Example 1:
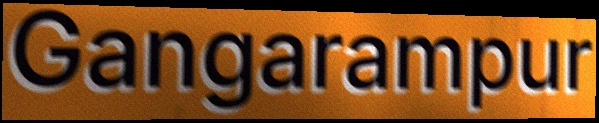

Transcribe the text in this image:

Gangarampur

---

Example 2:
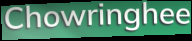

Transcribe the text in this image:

Chowringhee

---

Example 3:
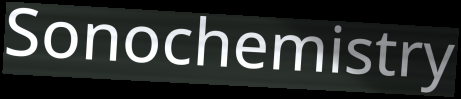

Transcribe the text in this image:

Sonochemistry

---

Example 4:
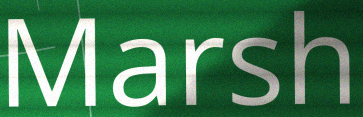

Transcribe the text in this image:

Marsh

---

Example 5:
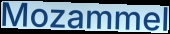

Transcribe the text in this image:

Mozammel